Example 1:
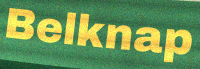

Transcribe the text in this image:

Belknap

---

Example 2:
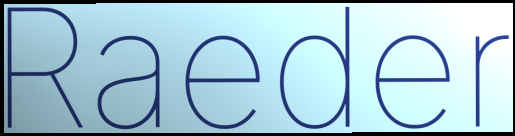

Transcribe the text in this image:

Raeder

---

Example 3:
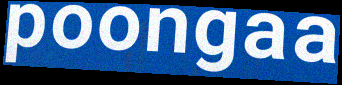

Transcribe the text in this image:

poongaa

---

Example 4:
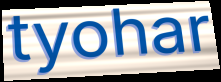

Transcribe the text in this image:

tyohar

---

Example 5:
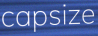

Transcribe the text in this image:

capsize